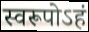
स्वरूपोऽहं